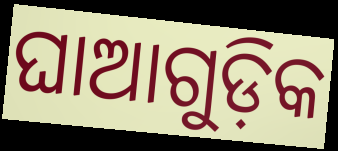
ଘାଆଗୁଡ଼ିକ